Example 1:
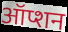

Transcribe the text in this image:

ऑप्‍शन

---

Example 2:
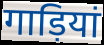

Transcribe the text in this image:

गाड़ियां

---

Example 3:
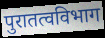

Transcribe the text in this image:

पुरातत्वविभाग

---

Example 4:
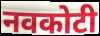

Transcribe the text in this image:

नवकोटी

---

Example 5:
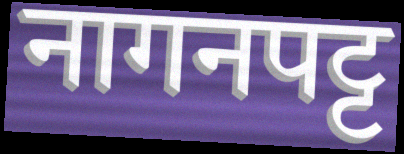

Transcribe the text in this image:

नागनपट्ट